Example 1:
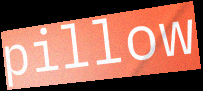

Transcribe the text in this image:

pillow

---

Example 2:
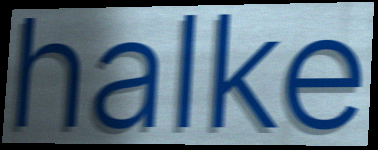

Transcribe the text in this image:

halke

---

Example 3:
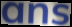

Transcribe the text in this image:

ans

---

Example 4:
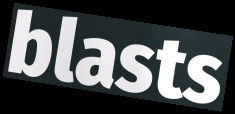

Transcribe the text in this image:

blasts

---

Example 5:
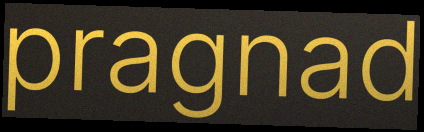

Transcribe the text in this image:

pragnad